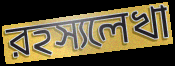
রহস্যলেখা